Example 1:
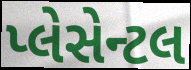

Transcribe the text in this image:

પ્લેસેન્ટલ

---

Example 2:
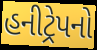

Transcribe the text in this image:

હનીટ્રેપનો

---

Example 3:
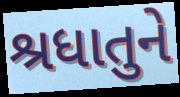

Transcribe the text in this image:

શ્રધાતુને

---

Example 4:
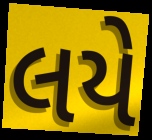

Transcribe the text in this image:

લયે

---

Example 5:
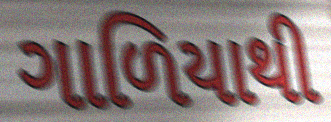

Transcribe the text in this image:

ગાળિયાથી